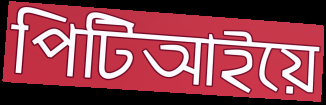
পিটিআইয়ে